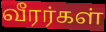
வீரர்கள்